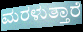
ಮರಳುತ್ತಾರೆ